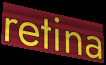
retina